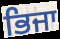
ਭਿਜਾ